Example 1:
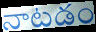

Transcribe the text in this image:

నాటడం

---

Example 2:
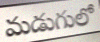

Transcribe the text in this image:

మడుగులో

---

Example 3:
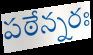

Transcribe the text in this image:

పఠేన్నరః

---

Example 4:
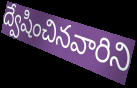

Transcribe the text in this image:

ద్వేషించినవారిని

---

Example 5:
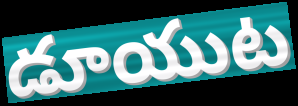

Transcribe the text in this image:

డూయుట